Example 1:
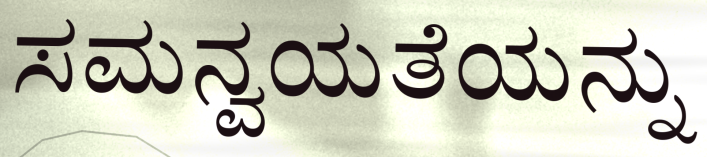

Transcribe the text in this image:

ಸಮನ್ವಯತೆಯನ್ನು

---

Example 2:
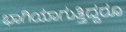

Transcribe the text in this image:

ಭಾಗಿಯಾಗುತ್ತಿದ್ದರೂ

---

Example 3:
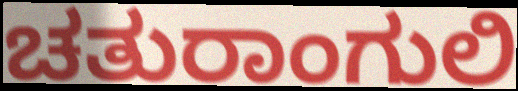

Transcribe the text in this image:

ಚತುರಾಂಗುಲಿ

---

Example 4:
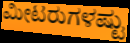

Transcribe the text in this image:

ಮೀಟರುಗಳಷ್ಟು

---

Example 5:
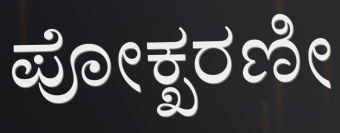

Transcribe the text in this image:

ಪೋಕ್ಖರಣೀ